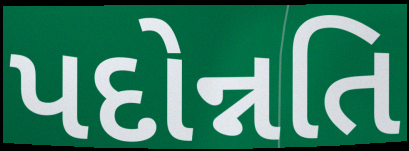
પદોન્નતિ